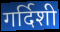
गर्दिशी